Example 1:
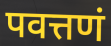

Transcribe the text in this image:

पवत्तणं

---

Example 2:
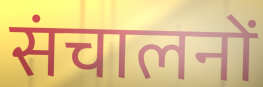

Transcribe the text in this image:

संचालनों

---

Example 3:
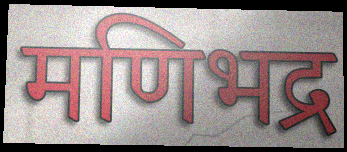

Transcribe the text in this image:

मणिभद्र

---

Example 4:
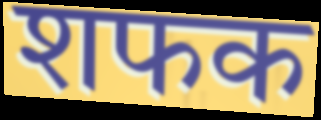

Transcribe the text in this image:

शफक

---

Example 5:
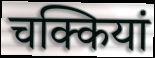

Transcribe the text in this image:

चक्कियां